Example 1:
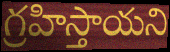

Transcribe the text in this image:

గ్రహిస్తాయని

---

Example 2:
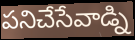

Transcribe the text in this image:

పనిచేసేవాడ్ని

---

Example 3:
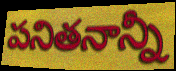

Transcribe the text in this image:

పనితనాన్నీ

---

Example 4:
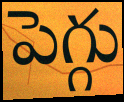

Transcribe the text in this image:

పెగ్గు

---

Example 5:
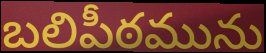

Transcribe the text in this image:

బలిపీఠమును